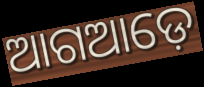
ଆଗଆଡ଼େ